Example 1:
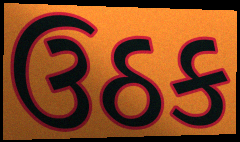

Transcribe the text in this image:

ઉઠક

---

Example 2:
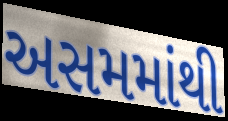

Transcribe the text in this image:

અસમમાંથી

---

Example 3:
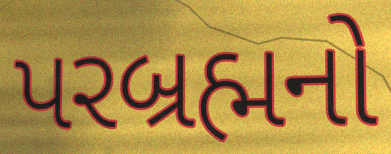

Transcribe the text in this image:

પરબ્રહ્મનો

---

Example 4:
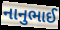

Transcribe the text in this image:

નાનુભાઈ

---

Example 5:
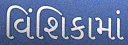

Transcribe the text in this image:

વિંશિકામાં